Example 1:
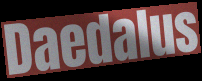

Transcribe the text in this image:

Daedalus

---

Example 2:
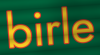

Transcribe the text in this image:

birle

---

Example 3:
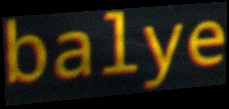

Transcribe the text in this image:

balye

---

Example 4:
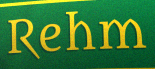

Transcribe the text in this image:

Rehm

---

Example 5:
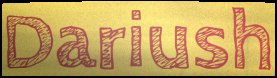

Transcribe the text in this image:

Dariush